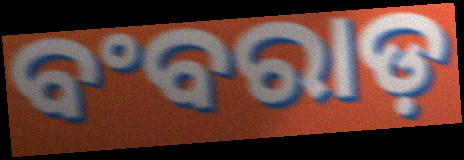
ବଂବରାଡ଼